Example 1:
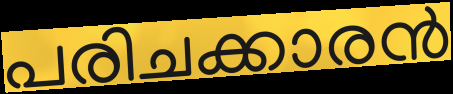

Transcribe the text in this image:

പരിചക്കാരൻ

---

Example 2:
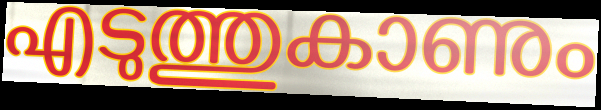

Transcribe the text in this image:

എടുത്തുകാണും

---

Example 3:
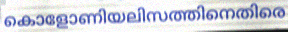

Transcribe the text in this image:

കൊളോണിയലിസത്തിനെതിരെ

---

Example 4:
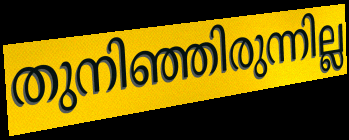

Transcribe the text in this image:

തുനിഞ്ഞിരുന്നില്ല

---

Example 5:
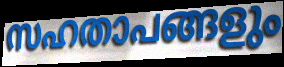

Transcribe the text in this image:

സഹതാപങ്ങളും